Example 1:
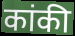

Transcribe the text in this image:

कांकी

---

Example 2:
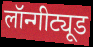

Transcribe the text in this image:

लॉन्गीट्यूड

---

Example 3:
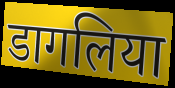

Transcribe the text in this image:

डागलिया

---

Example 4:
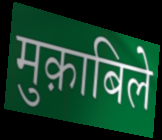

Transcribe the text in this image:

मुक़ाबिले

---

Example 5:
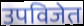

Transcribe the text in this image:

उपविजेत